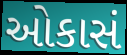
ઓકાસં